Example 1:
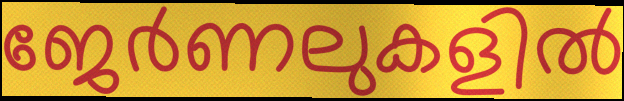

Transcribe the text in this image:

ജേർണലുകളിൽ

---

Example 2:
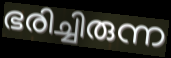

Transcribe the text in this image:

ഭരിച്ചിരുന്ന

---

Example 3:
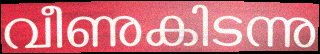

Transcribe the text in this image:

വീണുകിടന്നു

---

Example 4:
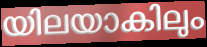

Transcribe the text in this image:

യിലയാകിലും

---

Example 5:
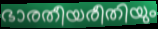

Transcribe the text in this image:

ഭാരതീയരീതിയും